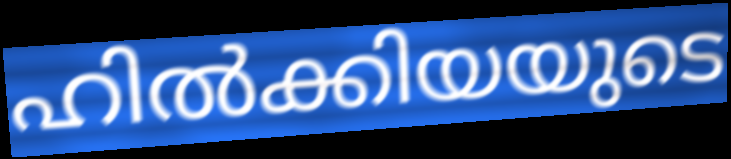
ഹിൽക്കിയയുടെ